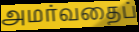
அமர்வதைப்